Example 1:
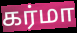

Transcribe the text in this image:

கர்மா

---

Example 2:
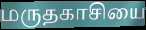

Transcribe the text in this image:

மருதகாசியை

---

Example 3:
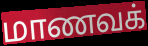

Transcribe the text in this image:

மாணவக்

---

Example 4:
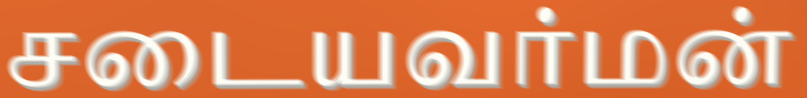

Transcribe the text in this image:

சடையவர்மன்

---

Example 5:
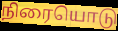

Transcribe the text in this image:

நிரையொடு